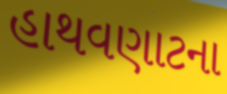
હાથવણાટના